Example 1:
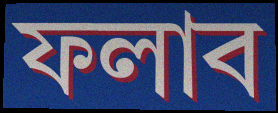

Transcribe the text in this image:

ফলাব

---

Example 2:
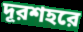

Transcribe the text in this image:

দূরশহরে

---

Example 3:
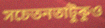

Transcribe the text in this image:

সচেতনতাটুকুও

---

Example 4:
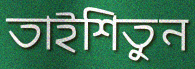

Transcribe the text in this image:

তাইশিতুন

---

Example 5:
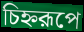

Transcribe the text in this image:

চিহ্নরূপে